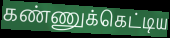
கண்ணுக்கெட்டிய